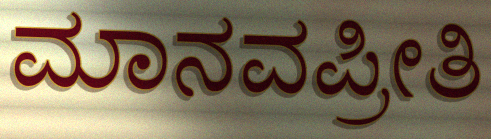
ಮಾನವಪ್ರೀತಿ